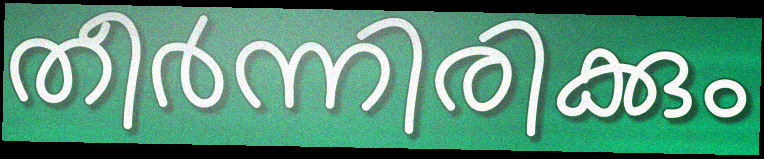
തീർന്നിരിക്കും